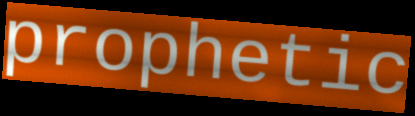
prophetic